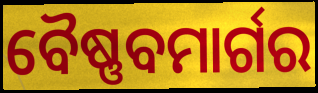
ବୈଷ୍ଣବମାର୍ଗର